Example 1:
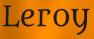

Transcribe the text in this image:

Leroy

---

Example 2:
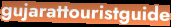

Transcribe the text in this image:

gujarattouristguide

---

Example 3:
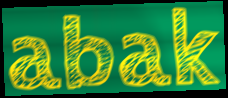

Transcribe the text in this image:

abak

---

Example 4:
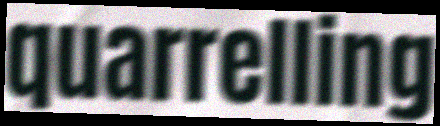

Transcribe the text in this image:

quarrelling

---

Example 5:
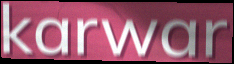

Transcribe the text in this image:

karwar